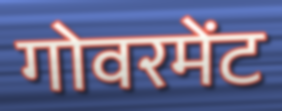
गोवरमेंट